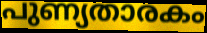
പുണ്യതാരകം